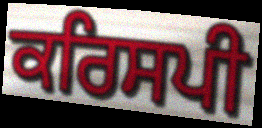
ਕਰਿਸਪੀ